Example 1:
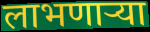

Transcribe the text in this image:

लाभणाऱ्या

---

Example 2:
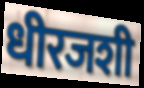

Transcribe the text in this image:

धीरजशी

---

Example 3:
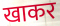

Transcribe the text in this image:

खाकर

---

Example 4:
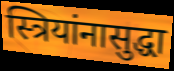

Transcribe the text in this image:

स्त्रियांनासुद्धा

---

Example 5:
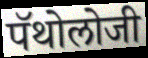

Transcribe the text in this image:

पॅथोलोजी